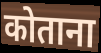
कोताना